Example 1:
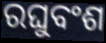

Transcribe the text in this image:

ରଘୁବଂଶ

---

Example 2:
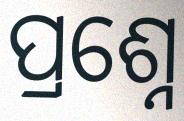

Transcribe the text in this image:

ପ୍ରଶ୍ନେ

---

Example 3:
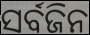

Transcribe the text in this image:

ସର୍ବଜିନ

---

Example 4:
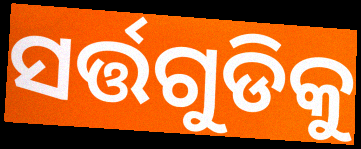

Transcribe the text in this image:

ସର୍ତ୍ତଗୁଡିକୁ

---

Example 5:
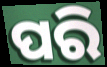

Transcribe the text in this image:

ପରି